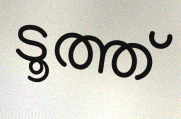
ടൂത്ത്